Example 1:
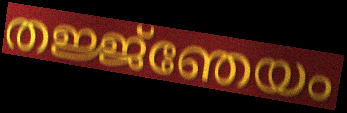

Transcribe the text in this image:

തജ്ജ്ഞേയം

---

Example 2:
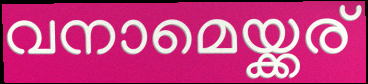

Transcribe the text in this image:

വനാമെയ്ക്കര്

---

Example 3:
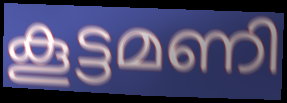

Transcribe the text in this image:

കൂട്ടമണി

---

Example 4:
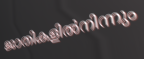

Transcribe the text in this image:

ജാതികളിൽനിന്നും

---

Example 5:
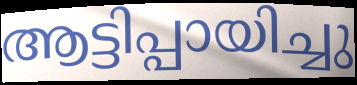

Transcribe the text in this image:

ആട്ടിപ്പായിച്ചു